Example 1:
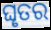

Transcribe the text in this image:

ଘୃତର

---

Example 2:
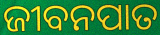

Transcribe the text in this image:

ଜୀବନପାତ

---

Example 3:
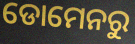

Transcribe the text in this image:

ଡୋମେନରୁ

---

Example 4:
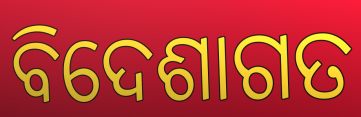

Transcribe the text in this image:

ବିଦେଶାଗତ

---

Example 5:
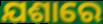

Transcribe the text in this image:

ଯଶାରେ